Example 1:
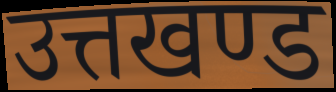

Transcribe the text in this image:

उत्तखण्ड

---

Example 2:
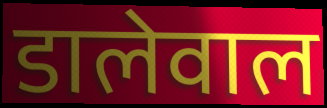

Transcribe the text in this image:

डालेवाल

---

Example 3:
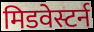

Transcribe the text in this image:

मिडवेस्टर्न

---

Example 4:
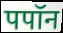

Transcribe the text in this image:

पपॉन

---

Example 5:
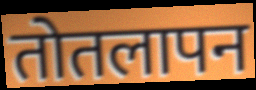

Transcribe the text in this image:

तोतलापन